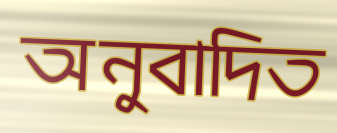
অনুবাদিত